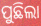
ପୁଛିଲା